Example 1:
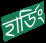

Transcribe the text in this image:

হার্ডিং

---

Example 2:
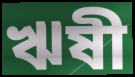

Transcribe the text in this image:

ঋষী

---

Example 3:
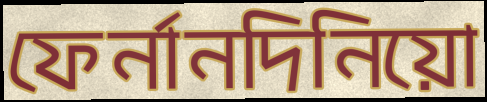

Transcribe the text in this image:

ফের্নানদিনিয়ো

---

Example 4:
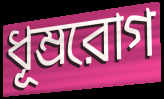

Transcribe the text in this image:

ধূম্ররোগ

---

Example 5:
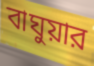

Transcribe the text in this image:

বাঘুয়ার